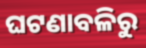
ଘଟଣାବଳିରୁ